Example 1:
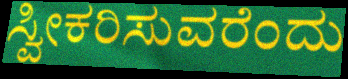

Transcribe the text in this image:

ಸ್ವೀಕರಿಸುವರೆಂದು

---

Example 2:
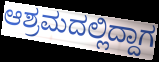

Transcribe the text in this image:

ಆಶ್ರಮದಲ್ಲಿದ್ದಾಗ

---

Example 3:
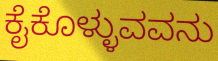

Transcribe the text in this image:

ಕೈಕೊಳ್ಳುವವನು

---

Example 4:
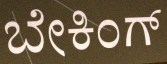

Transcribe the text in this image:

ಬೇಕಿಂಗ್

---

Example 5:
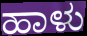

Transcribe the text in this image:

ಹಾಳು